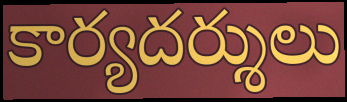
కార్యదర్శులు